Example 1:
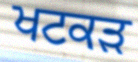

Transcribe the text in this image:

ਖਟਕੜ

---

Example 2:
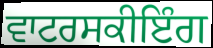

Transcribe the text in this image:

ਵਾਟਰਸਕੀਇੰਗ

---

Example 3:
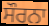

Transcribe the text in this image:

ਸੌਰਨਾ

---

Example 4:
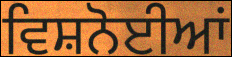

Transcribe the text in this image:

ਵਿਸ਼ਨੋਈਆਂ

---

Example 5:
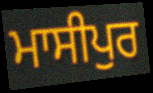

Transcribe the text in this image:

ਮਾਸੀਪੁਰ